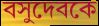
বসুদেবকে